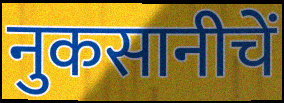
नुकसानीचें